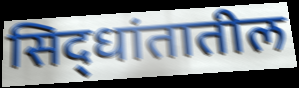
सिद्धांतातील